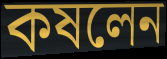
কষলেন